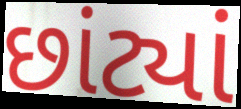
છાંટ્યાં